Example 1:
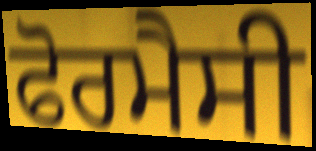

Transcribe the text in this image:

ਫੋਰਮੈਸੀ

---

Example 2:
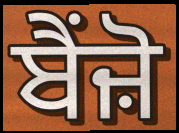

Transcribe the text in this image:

ਬੈਂਜ਼ੋ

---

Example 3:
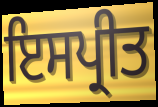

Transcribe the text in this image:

ਇਸਪ੍ਰੀਤ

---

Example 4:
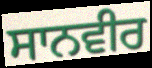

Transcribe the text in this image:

ਸਾਨਵੀਰ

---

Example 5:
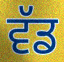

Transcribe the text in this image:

ਵੱਡ